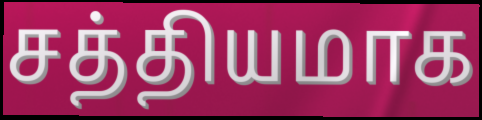
சத்தியமாக